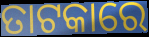
ତାଟକାରେ